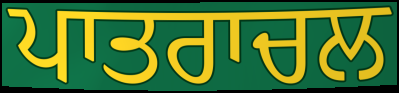
ਪਾਤਰਾਚਲ